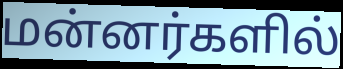
மன்னர்களில்